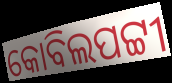
କୋବିଲପଟ୍ଟୀ